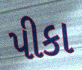
પીકા